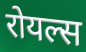
रोयल्स